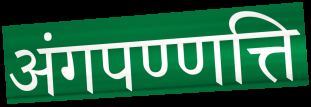
अंगपण्णत्ति